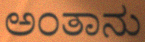
ಅಂತಾನು